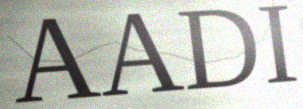
AADI